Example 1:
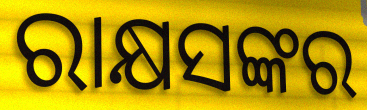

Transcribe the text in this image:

ରାକ୍ଷସଙ୍କର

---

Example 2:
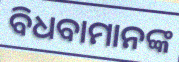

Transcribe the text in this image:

ବିଧବାମାନଙ୍କ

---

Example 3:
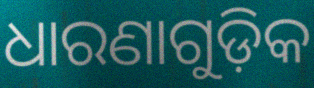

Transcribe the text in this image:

ଧାରଣାଗୁଡ଼ିକ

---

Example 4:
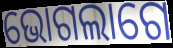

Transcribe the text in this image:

ଭୋଗଲାଗେ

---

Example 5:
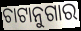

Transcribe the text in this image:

ଚାଟାନୁଗାର